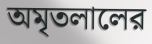
অমৃতলালের